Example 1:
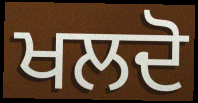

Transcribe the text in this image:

ਖਲਦੋ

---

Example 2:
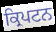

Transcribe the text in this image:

ਕ੍ਰਿਪਟਨ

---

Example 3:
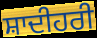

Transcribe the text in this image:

ਸ਼ਾਦੀਹਰੀ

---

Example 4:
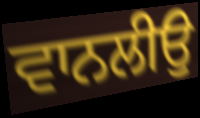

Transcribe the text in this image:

ਵਾਨਲੀਉ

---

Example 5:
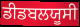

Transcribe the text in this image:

ਡੀਡਬਲਯੂਸੀ